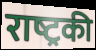
राष्ट्रकी